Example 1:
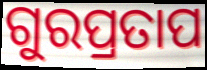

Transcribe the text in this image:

ଗୁରପ୍ରତାପ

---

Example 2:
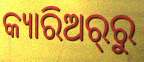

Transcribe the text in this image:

କ୍ୟାରିଅର୍‌ରୁ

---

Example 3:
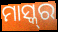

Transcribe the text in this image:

ମାସ୍କ୍‌ର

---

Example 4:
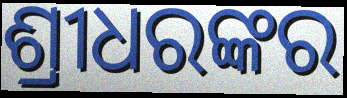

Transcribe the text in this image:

ଶ୍ରୀଧରଙ୍କର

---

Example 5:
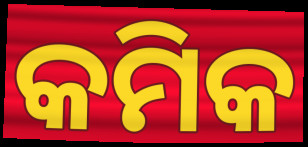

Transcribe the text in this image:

କମିକ